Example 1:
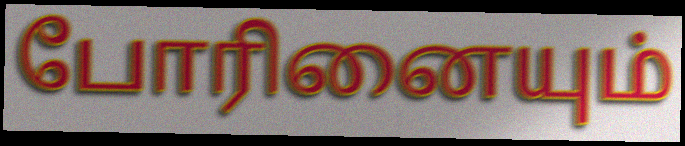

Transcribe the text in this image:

போரினையும்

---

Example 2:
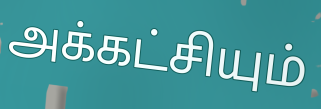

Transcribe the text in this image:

அக்கட்சியும்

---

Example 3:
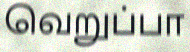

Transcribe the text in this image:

வெறுப்பா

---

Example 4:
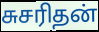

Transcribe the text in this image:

சுசரிதன்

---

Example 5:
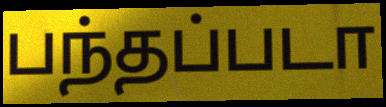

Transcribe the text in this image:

பந்தப்படா